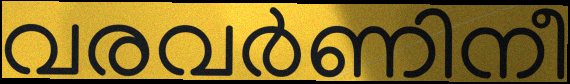
വരവർണിനീ